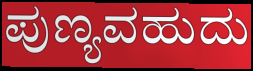
ಪುಣ್ಯವಹುದು